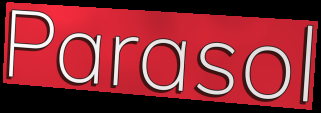
Parasol